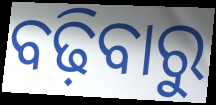
ବଢ଼ିବାରୁ